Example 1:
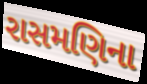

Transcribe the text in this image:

રાસમણિના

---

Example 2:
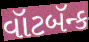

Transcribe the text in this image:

વૉટબૅન્ક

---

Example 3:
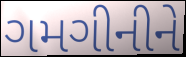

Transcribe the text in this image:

ગમગીનીને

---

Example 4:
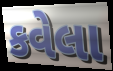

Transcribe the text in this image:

કવેલા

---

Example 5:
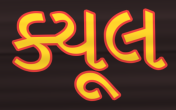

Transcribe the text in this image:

ક્યૂલ